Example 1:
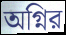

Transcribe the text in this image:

অগ্নির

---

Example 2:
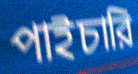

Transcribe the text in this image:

পাইচারি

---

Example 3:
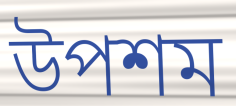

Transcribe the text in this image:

উপশম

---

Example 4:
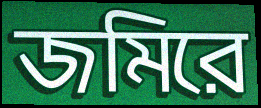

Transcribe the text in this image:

জমিরে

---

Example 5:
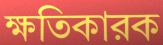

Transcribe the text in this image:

ক্ষতিকারক